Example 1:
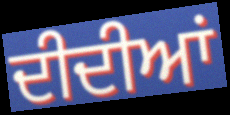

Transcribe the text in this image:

ਦੀਦੀਆਂ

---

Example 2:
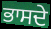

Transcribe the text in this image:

ਭਾਸਦੇ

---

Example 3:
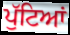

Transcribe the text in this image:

ਪੁੱਟਿਆਂ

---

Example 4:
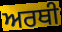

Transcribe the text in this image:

ਅਰਥੀ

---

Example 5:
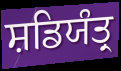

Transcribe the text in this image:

ਸ਼ਡਿਯੰਤ੍ਰ